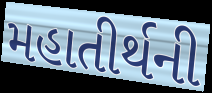
મહાતીર્થની